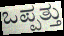
ಒಪ್ಪತ್ತು